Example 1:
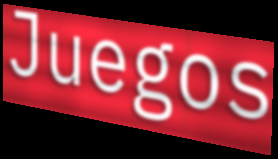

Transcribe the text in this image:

Juegos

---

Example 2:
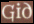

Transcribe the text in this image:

Gid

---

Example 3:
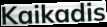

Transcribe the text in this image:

Kaikadis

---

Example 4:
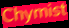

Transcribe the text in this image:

Chymist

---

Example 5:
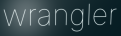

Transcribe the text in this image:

wrangler